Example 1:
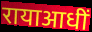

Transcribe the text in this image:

रायाआधीं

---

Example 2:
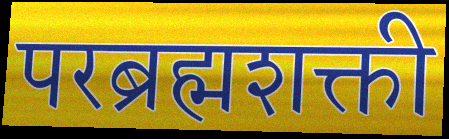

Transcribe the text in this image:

परब्रह्मशक्ती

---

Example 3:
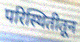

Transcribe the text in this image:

परिस्थितीतून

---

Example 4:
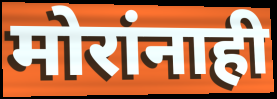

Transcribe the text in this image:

मोरांनाही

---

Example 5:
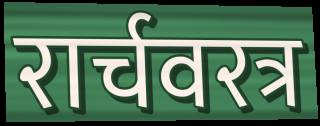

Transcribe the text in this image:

रार्चवरत्र